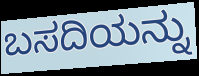
ಬಸದಿಯನ್ನು